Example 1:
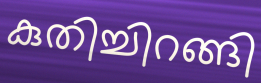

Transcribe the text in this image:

കുതിച്ചിറങ്ങി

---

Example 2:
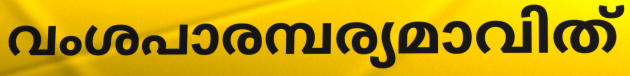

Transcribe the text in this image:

വംശപാരമ്പര്യമാവിത്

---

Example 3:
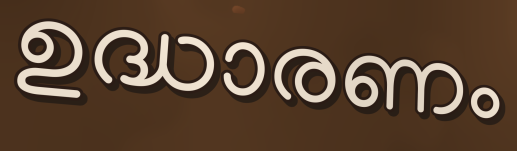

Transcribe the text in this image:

ഉദ്ധാരണം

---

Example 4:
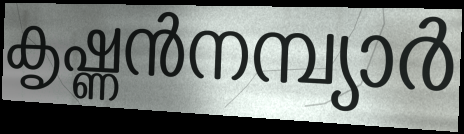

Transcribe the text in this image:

കൃഷ്ണൻനമ്പ്യാർ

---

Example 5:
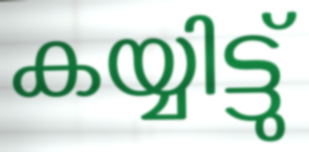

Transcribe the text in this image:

കയ്യിട്ടു്